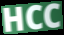
HCC